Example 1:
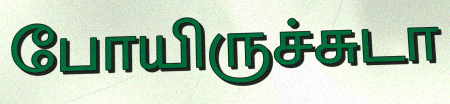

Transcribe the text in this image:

போயிருச்சுடா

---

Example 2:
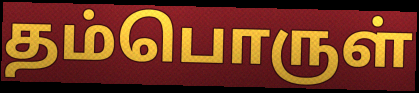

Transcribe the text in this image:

தம்பொருள்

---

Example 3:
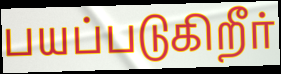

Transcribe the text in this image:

பயப்படுகிறீர்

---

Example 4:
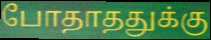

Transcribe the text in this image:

போதாததுக்கு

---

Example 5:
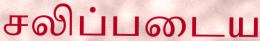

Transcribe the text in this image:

சலிப்படைய